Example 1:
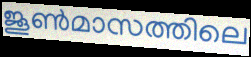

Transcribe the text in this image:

ജൂൺമാസത്തിലെ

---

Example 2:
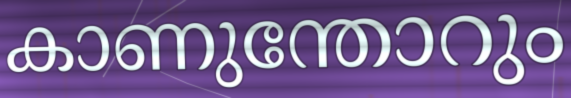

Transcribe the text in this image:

കാണുന്തോറും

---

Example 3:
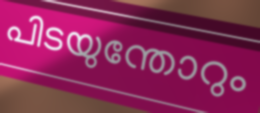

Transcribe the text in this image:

പിടയുന്തോറും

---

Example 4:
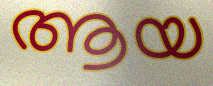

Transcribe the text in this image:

ആയ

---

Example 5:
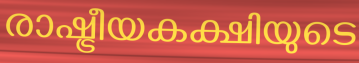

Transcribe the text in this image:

രാഷ്ട്രീയകക്ഷിയുടെ